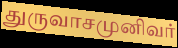
துருவாசமுனிவர்